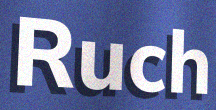
Ruch